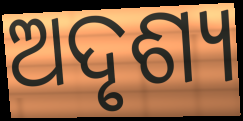
ଅଦୃଶ୍ୟ